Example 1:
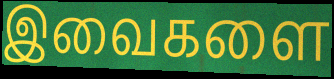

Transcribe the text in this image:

இவைகளை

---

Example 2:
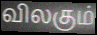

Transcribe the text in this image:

விலகும்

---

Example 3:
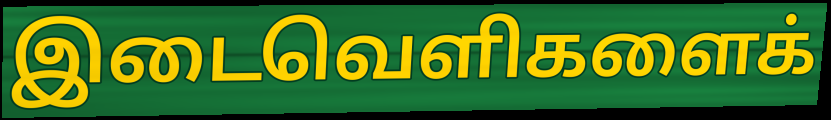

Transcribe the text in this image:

இடைவெளிகளைக்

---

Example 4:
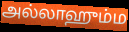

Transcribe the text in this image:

அல்லாஹும்ம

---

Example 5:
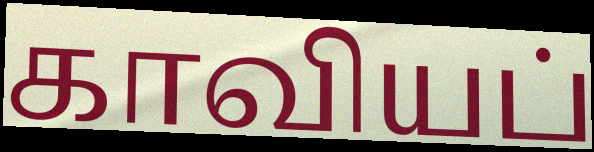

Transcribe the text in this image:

காவியப்